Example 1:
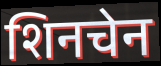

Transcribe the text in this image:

शिनचेन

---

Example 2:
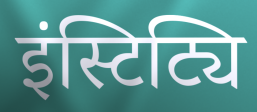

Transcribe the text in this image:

इंस्टिट्यि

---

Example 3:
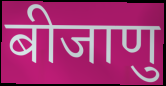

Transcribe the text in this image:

बीजाणु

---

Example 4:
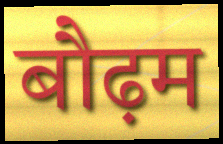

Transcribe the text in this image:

बौढ़म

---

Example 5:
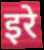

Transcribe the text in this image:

इरे